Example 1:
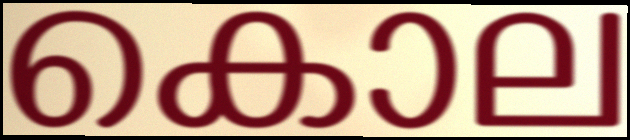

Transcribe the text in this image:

കൊല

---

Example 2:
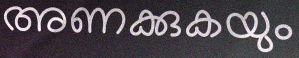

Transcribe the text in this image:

അണക്കുകയും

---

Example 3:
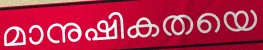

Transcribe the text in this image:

മാനുഷികതയെ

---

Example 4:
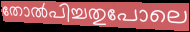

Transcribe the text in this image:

തോൽപിച്ചതുപോലെ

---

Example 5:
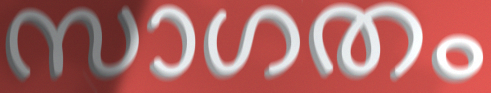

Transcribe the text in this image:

സാഗതം